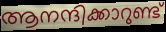
ആനന്ദിക്കാറുണ്ട്